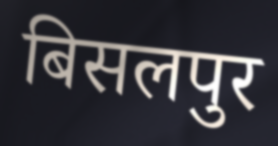
बिसलपुर